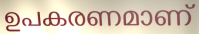
ഉപകരണമാണ്